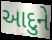
આદુને